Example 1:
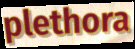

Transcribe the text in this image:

plethora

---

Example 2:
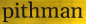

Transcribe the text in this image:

pithman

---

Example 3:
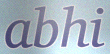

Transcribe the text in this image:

abhi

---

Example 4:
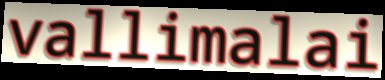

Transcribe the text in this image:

vallimalai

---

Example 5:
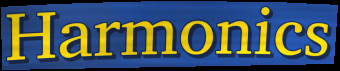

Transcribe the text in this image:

Harmonics